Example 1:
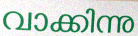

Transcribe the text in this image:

വാക്കിന്നു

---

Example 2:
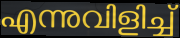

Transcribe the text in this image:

എന്നുവിളിച്ച്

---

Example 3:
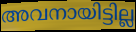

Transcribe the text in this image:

അവനായിട്ടില്ല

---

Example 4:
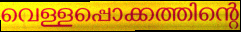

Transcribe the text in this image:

വെള്ളപ്പൊക്കത്തിന്റെ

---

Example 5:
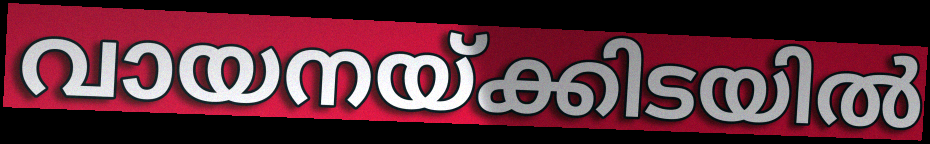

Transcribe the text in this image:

വായനയ്ക്കിടയിൽ